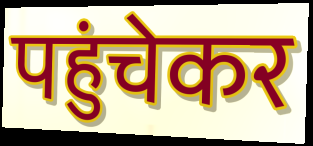
पहुंचेकर